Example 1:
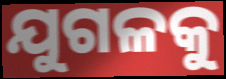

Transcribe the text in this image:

ଯୁଗଳକୁ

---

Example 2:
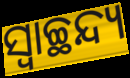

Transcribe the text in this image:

ସ୍ୱାଚ୍ଛନ୍ଦ୍ୟ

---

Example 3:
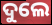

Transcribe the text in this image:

ଦୁଲେ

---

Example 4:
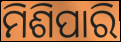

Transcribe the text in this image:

ମିଶିପାରି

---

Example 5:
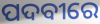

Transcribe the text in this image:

ପଦବୀରେ